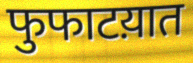
फुफाटय़ात